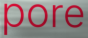
pore